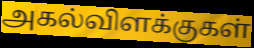
அகல்விளக்குகள்